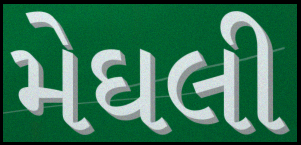
મેઘલી